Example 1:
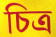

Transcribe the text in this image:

চিত্র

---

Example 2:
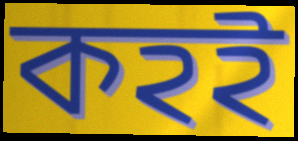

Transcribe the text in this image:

কহই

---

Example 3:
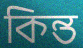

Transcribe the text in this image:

কিন্ত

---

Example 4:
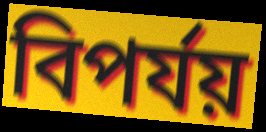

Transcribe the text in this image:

বিপর্যয়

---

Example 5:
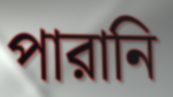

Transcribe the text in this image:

পারানি